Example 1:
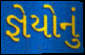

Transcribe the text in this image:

જ્ઞેયોનું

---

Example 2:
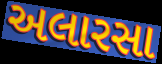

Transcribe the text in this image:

અલારસા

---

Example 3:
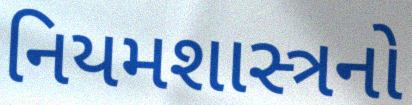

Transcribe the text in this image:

નિયમશાસ્ત્રનો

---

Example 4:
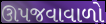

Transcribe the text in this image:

ઊપજવાવાળો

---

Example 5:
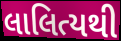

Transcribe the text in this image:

લાલિત્યથી